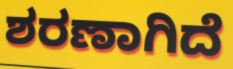
ಶರಣಾಗಿದೆ